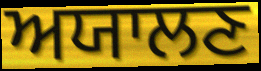
ਅਯਾਲਣ